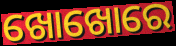
ଖୋଖୋରେ